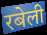
रबेली